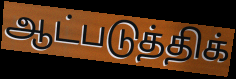
ஆட்படுத்திக்